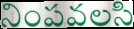
నింపవలసి